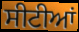
ਸੀਟੀਆਂ